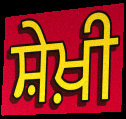
ਸ਼ੇਖ਼ੀ